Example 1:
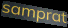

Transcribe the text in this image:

samprat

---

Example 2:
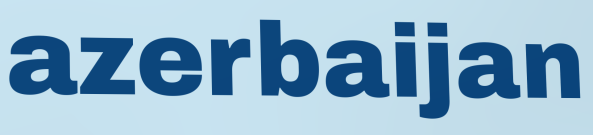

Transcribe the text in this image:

azerbaijan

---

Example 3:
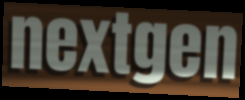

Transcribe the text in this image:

nextgen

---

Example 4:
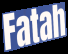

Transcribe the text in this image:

Fatah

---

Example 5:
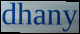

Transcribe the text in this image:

dhany